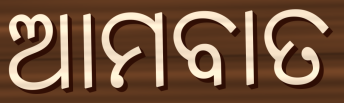
ଆମବାତ